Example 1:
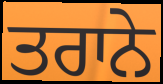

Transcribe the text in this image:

ਤਰਾਨੇ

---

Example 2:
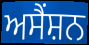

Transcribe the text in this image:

ਅਸੈਂਸ਼ਨ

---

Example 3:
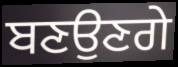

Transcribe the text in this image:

ਬਣਉਣਗੇ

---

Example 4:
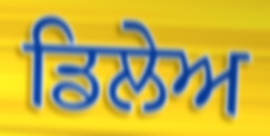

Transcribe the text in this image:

ਡਿਲੇਅ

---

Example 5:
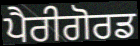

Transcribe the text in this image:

ਪੈਰੀਗੋਰਡ